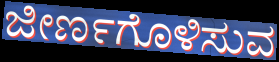
ಜೀರ್ಣಗೊಳಿಸುವ